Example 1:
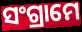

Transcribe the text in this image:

ସଂଗ୍ରାମେ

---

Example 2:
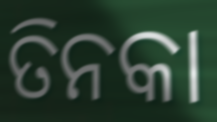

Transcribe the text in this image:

ତିନକା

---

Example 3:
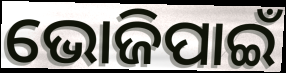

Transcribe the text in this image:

ଭୋଜିପାଇଁ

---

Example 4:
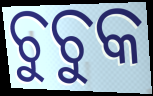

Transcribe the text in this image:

ଚୁଚୁକ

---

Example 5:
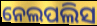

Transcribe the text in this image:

ନେଲପଲିସ